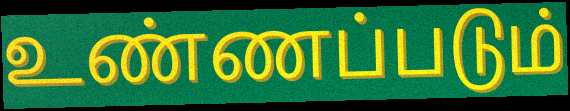
உண்ணப்படும்